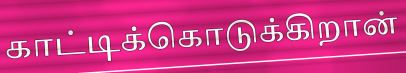
காட்டிக்கொடுக்கிறான்